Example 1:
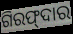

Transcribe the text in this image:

ଗିରଫ୍‍ଦାର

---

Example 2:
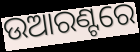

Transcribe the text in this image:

ଉଆରଣ୍ଟରେ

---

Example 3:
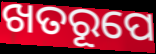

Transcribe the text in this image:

ଖତରୂପେ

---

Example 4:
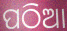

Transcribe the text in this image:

ପଠିଆ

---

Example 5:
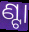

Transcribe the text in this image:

ଣ୍ଟା